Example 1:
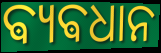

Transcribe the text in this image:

ଵ୍ୟଵଧାନ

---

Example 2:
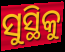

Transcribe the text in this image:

ସୁସ୍ଥିକୁ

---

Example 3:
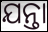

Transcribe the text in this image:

ଯନ୍ତା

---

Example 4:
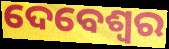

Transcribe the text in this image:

ଦେବେଶ୍ୱର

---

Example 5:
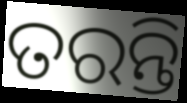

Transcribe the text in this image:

ତରନ୍ତି